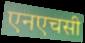
एनएचसी